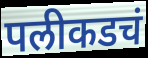
पलीकडचं